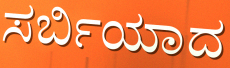
ಸರ್ಬಿಯಾದ